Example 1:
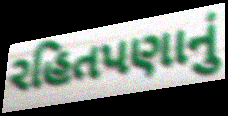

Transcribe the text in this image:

રહિતપણાનું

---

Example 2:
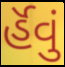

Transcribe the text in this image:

ર્હૅવું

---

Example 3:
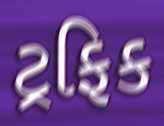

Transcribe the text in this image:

ટ્રફિક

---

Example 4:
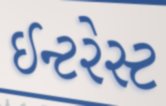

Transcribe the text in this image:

ઈન્ટરેસ્ટ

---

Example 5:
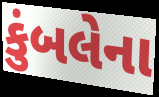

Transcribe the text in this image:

કુંબલેના